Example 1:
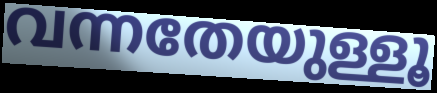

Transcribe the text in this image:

വന്നതേയുള്ളൂ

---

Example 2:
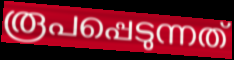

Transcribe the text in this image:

രൂപപ്പെടുന്നത്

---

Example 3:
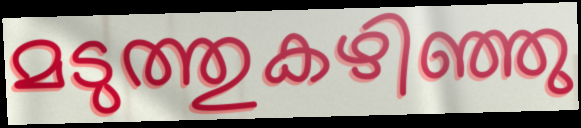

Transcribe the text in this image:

മടുത്തുകഴിഞ്ഞു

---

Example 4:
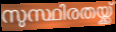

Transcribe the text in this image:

സുസ്ഥിരതയ്ക്ക്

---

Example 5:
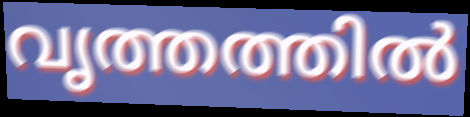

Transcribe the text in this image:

വൃത്തത്തിൽ